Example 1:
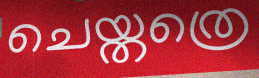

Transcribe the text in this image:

ചെയ്തത്രെ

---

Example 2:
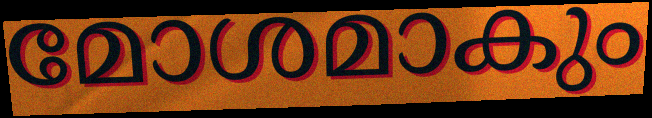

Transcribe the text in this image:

മോശമാകും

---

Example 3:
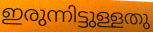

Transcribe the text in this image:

ഇരുന്നിട്ടുള്ളതു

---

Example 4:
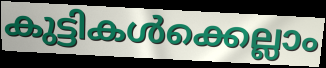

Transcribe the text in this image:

കുട്ടികൾക്കെല്ലാം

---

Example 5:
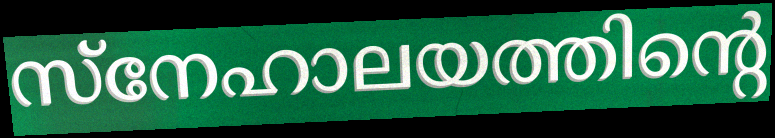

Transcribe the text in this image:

സ്നേഹാലയത്തിന്റെ